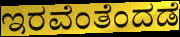
ಇರವೆಂತೆಂದಡೆ